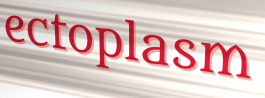
ectoplasm